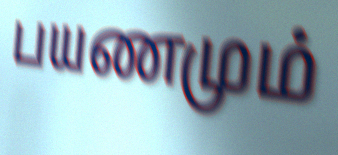
பயணமும்